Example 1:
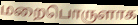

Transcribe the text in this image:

மறைபொருளாக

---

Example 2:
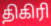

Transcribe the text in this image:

திகிரி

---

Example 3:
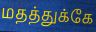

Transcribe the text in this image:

மதத்துக்கே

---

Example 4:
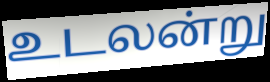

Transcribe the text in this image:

உடலன்று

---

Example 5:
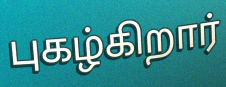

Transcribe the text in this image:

புகழ்கிறார்